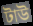
টাউ